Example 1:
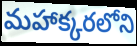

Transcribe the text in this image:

మహాక్కరలోని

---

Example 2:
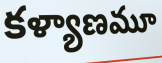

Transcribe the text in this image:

కళ్యాణమూ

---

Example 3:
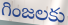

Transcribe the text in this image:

గింజలకు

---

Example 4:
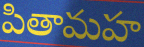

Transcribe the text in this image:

పితామహ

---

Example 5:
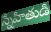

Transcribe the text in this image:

స్నేహితుడి